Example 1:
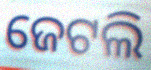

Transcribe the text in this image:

ଜେଟଲି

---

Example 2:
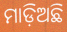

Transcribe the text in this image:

ମାଡ଼ିଅଛି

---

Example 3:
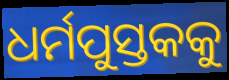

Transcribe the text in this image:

ଧର୍ମପୁସ୍ତକକୁ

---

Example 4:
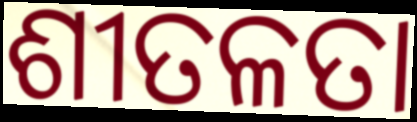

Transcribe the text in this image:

ଶୀତଳତା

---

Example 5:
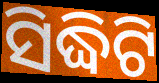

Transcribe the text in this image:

ସିଦ୍ଧିଟି